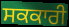
ਸਕਕਾਰੀ